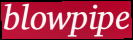
blowpipe